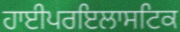
ਹਾਈਪਰਇਲਾਸਟਿਕ